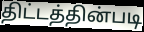
திட்டத்தின்படி